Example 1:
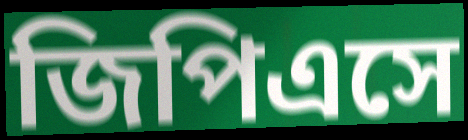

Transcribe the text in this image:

জিপিএসে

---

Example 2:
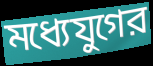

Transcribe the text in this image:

মধ্যেযুগের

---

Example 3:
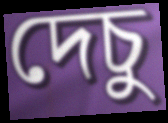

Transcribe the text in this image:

দেচু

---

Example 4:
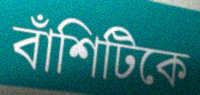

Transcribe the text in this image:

বাঁশিটিকে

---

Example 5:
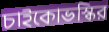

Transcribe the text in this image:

চাইকোভস্কির